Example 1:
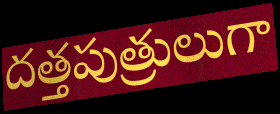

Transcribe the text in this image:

దత్తపుత్రులుగా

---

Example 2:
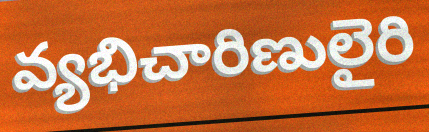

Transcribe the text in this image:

వ్యభిచారిణులైరి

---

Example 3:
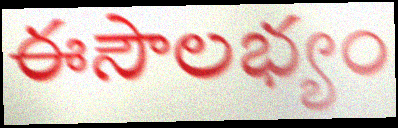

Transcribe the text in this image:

ఈసౌలభ్యం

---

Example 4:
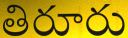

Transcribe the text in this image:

తిరూరు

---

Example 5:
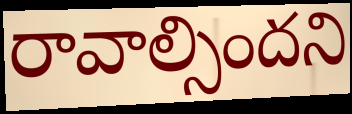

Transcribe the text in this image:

రావాల్సిందని